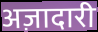
अज़ादारी